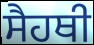
ਸੈਹਥੀ